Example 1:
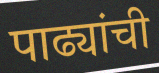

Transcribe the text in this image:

पाढ्यांची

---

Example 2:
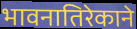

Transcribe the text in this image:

भावनातिरेकाने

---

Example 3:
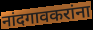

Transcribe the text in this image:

नांदगावकरांना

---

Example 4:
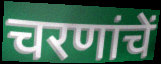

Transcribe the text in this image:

चरणांचें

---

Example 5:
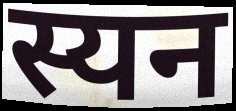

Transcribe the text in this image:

स्यन